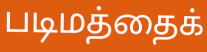
படிமத்தைக்